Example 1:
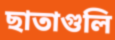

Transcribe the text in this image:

ছাতাগুলি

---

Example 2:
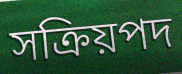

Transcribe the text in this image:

সক্রিয়পদ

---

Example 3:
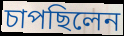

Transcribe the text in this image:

চাপছিলেন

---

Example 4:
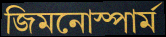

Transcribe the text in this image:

জিমনোস্পার্ম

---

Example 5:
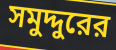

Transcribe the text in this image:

সমুদ্দুরের